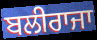
ਬਲੀਰਾਜਾ